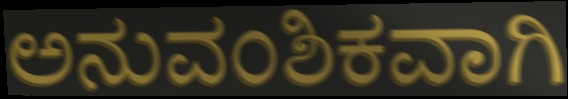
ಅನುವಂಶಿಕವಾಗಿ